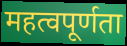
महत्वपूर्णता